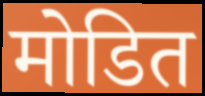
मोडित